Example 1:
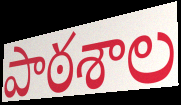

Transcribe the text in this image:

పాఠశాల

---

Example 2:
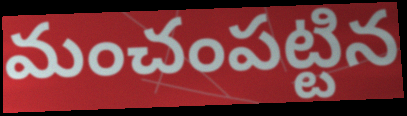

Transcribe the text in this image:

మంచంపట్టిన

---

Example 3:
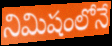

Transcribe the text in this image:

నిమిషంలోనే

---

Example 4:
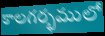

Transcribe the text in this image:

కాలగర్భములో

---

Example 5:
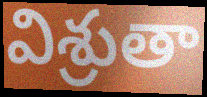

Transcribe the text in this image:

విశ్రుతా